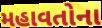
મહાવતોના